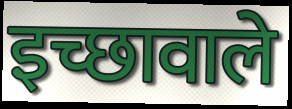
इच्छावाले